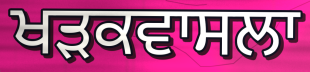
ਖੜਕਵਾਸਲਾ